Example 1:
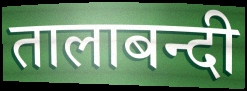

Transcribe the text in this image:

तालाबन्दी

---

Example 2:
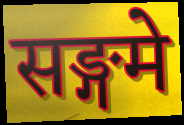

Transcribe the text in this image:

सङ्गमे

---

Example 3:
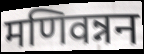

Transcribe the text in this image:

मणिवन्नन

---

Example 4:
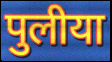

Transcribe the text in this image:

पुलीया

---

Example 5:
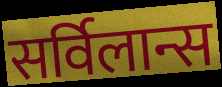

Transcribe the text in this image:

सर्विलान्स